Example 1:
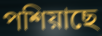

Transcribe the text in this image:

পশিয়াছে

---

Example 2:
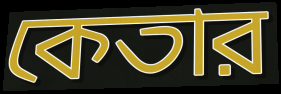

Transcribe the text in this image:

কেতার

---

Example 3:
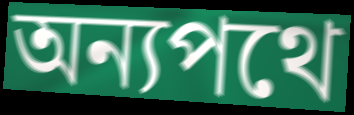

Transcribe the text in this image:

অন্যপথে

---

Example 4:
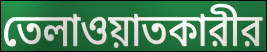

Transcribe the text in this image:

তেলাওয়াতকারীর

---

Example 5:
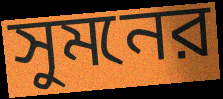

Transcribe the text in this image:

সুমনের